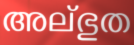
അല്ഭുത